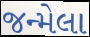
જન્મેલા